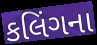
કલિંગના